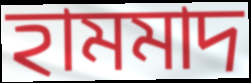
হামমাদ